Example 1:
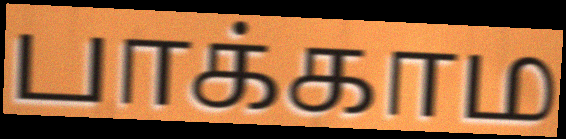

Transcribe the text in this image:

பாக்காம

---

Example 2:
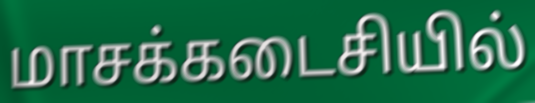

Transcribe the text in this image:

மாசக்கடைசியில்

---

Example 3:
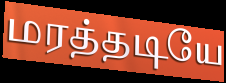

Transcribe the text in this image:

மரத்தடியே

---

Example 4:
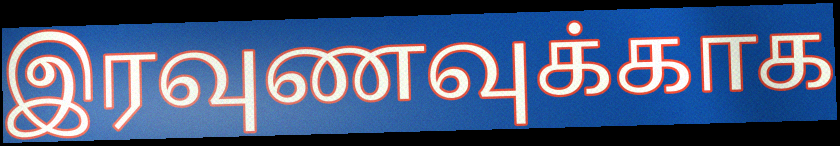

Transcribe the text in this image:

இரவுணவுக்காக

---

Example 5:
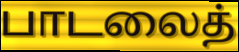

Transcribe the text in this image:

பாடலைத்